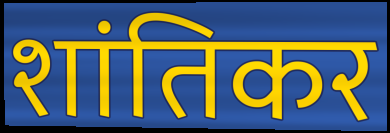
शांतिकर